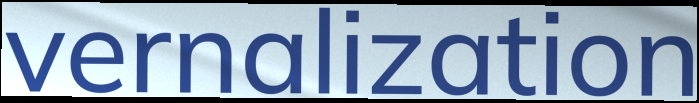
vernalization